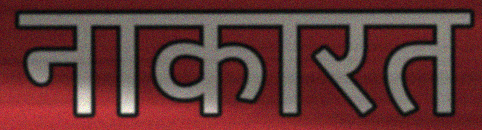
नाकारत